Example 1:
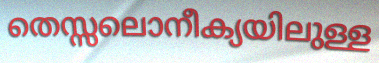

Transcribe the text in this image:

തെസ്സലൊനീക്യയിലുള്ള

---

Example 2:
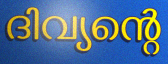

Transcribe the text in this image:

ദിവ്യന്റെ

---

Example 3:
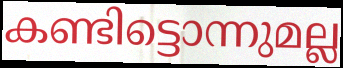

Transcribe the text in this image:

കണ്ടിട്ടൊന്നുമല്ല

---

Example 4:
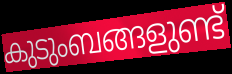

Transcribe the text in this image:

കുടുംബങ്ങളുണ്ട്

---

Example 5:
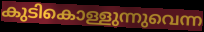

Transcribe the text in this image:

കുടികൊള്ളുന്നുവെന്ന